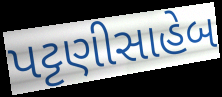
પટ્ટણીસાહેબ